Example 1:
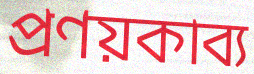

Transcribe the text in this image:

প্রণয়কাব্য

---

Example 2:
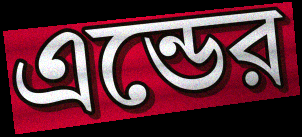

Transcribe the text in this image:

এন্ডের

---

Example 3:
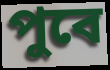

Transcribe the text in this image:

পুবে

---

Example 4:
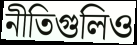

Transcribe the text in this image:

নীতিগুলিও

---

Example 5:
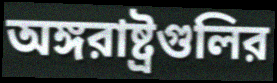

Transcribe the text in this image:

অঙ্গরাষ্ট্রগুলির